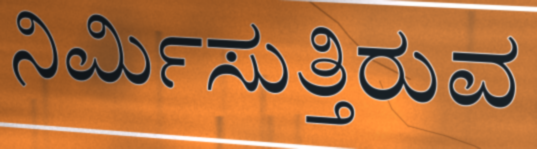
ನಿರ್ಮಿಸುತ್ತಿರುವ